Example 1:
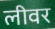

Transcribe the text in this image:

लीवर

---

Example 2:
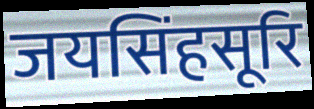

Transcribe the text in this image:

जयसिंहसूरि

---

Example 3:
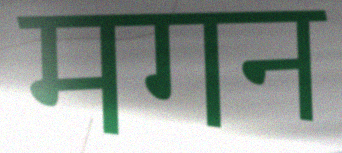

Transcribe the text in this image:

मगन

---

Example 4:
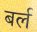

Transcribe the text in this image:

बर्ल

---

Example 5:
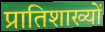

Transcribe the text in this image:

प्रातिशाख्यों